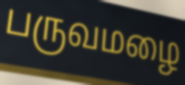
பருவமழை